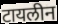
टायलीन